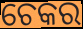
ଚେକର